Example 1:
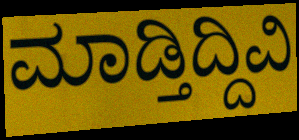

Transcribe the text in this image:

ಮಾಡ್ತಿದ್ದಿವಿ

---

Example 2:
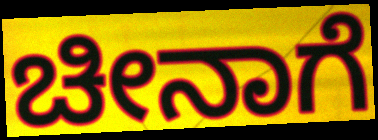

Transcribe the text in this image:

ಚೀನಾಗೆ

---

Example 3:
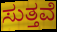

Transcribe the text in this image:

ಸುತ್ತವೆ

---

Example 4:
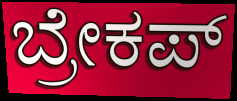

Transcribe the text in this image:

ಬ್ರೇಕಪ್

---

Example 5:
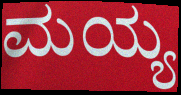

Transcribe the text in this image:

ಮಯ್ಯ